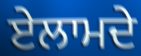
ਏਲਾਮਦੇ